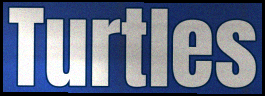
Turtles